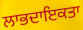
ਲਾਭਦਾਇਕਤਾ